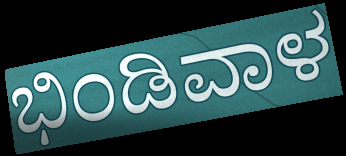
ಭಿಂಡಿವಾಳ